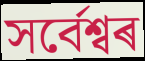
সৰ্বেশ্বৰ